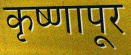
कृष्णापूर